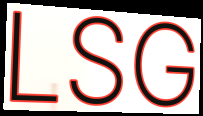
LSG